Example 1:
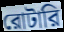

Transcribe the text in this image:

রোটারি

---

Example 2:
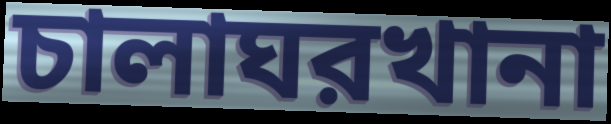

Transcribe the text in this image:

চালাঘরখানা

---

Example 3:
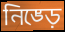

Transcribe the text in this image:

নিঙ্ড়ে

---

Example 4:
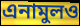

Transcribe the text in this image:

এনামুলও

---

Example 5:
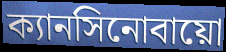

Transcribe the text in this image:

ক্যানসিনোবায়ো